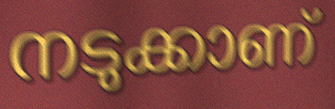
നടുക്കാണ്